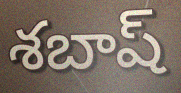
శబాష్